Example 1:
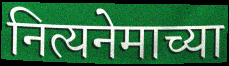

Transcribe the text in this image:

नित्यनेमाच्या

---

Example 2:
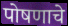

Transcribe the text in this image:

पोषणाचे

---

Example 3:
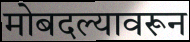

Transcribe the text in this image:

मोबदल्यावरून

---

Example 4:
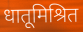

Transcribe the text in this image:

धातूमिश्रित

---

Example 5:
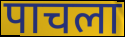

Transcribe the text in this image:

पाचला